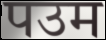
पउम